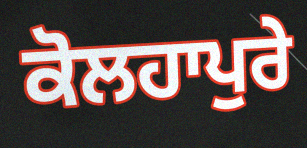
ਕੋਲਹਾਪੁਰੇ